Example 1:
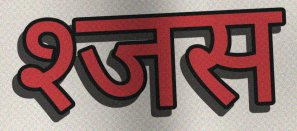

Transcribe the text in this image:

श्जस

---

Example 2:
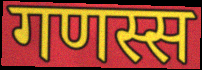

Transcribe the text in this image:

गणस्स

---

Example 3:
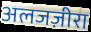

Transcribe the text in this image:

अलजज़ीरा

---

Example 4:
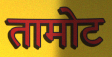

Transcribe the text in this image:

तामोट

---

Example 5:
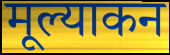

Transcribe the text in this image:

मूल्याकन